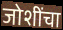
जोशींचा